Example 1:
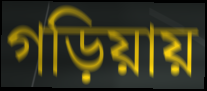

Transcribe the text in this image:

গড়িয়ায়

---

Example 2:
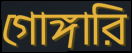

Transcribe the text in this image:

গোঙ্গারি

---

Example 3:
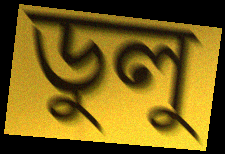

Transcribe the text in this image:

ডুলু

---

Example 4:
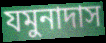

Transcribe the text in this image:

যমুনাদাস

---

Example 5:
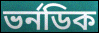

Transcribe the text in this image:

ভর্নডিক